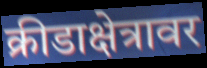
क्रीडाक्षेत्रावर